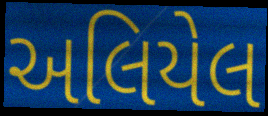
અલિયેલ